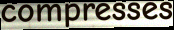
compresses